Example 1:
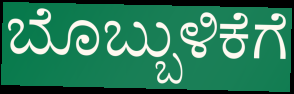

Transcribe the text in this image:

ಬೊಬ್ಬುಳಿಕೆಗೆ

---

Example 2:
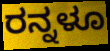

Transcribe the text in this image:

ರನ್ನಳೂ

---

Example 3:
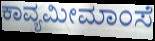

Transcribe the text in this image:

ಕಾವ್ಯಮೀಮಾಂಸೆ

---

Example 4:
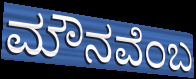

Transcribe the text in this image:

ಮೌನವೆಂಬ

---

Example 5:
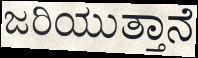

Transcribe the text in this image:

ಜರಿಯುತ್ತಾನೆ